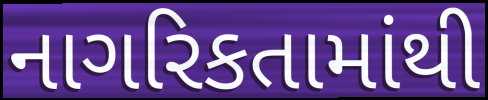
નાગરિકતામાંથી